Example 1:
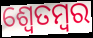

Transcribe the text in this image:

ଶ୍ଵେତମ୍ବର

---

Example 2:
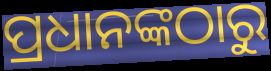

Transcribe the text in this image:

ପ୍ରଧାନଙ୍କଠାରୁ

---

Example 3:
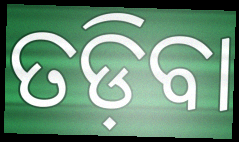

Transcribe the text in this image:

ତଡ଼ିବା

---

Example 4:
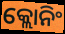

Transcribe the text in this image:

କ୍ଲୋନିଂ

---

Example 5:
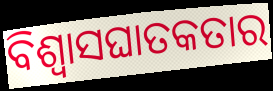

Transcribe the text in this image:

ବିଶ୍ୱାସଘାତକତାର